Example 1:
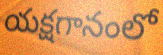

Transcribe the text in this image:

యక్షగానంలో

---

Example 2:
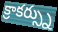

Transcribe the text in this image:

క్రాకర్స్ను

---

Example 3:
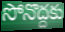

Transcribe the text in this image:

సోనొద్దకు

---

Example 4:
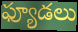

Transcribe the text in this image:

ఫ్యూడలు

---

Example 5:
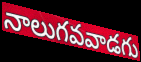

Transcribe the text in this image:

నాలుగవవాడగు